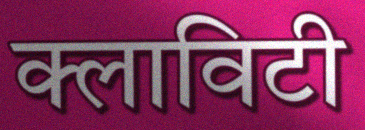
क्लाविटी